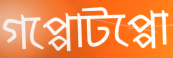
গপ্পোটপ্পো